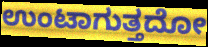
ಉಂಟಾಗುತ್ತದೋ